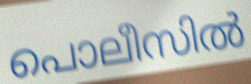
പൊലീസിൽ